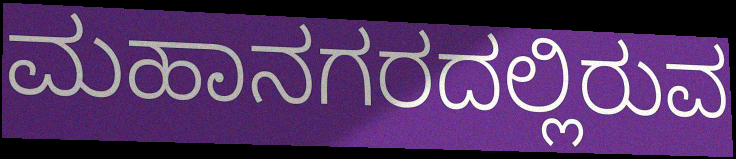
ಮಹಾನಗರದಲ್ಲಿರುವ